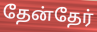
தேன்தேர்